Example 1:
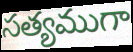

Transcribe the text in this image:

సత్యముగా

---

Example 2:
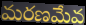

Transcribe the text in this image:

మరణమేవ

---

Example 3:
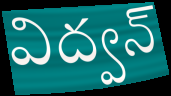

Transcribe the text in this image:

విద్వన్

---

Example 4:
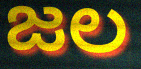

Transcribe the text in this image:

జల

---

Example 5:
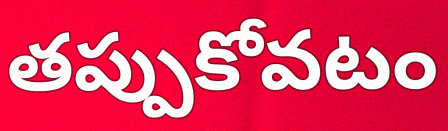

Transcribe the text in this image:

తప్పుకోవటం